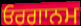
ਓਰਗਾਨਮ